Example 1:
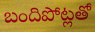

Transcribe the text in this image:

బందిపోట్లతో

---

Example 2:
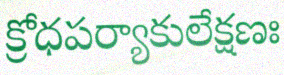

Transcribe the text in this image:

క్రోధపర్యాకులేక్షణః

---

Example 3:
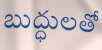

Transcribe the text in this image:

బుద్ధులతో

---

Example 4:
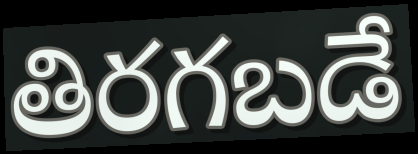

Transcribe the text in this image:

తిరగబడే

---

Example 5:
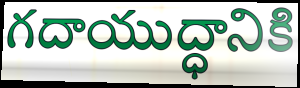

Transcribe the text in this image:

గదాయుద్ధానికి